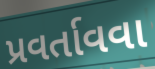
પ્રવર્તાવવા